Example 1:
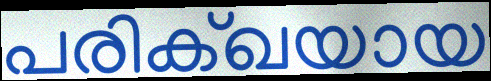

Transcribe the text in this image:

പരിക്ഖയായ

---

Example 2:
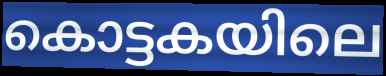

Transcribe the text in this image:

കൊട്ടകയിലെ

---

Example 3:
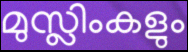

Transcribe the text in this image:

മുസ്ലിംകളും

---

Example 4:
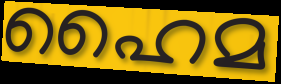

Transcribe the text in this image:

ഹൈമ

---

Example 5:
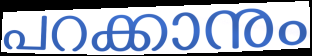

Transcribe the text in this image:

പറക്കാനും